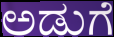
ಅಡುಗೆ